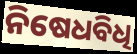
ନିଷେଧବିଧି